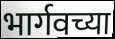
भार्गवच्या